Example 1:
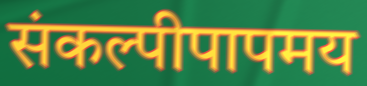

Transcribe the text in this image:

संकल्पीपापमय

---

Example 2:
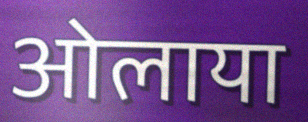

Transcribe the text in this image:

ओलाया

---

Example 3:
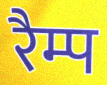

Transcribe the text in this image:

रैम्प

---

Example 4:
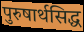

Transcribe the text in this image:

पुरुषार्थसिद्ध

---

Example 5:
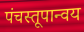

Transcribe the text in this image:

पंचस्तूपान्वय